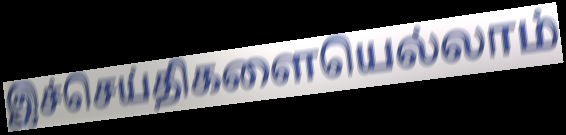
இச்செய்திகளையெல்லாம்